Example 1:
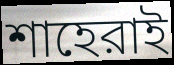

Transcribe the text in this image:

শাহেরাই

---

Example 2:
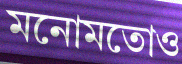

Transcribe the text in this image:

মনোমতোও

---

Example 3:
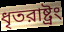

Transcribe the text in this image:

ধৃতরাষ্ট্রং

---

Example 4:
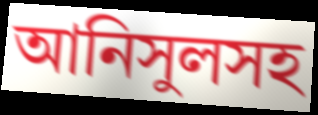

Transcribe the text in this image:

আনিসুলসহ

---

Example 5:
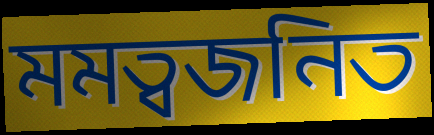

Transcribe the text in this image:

মমত্বজনিত